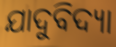
ଯାଦୁବିଦ୍ୟା